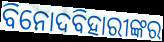
ବିନୋଦବିହାରୀଙ୍କର